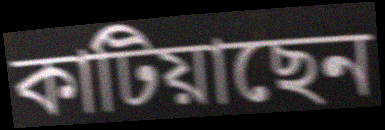
কাটিয়াছেন